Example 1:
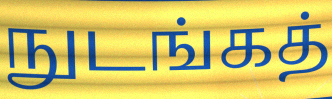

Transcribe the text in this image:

நுடங்கத்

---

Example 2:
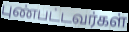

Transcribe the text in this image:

புண்பட்டவர்கள்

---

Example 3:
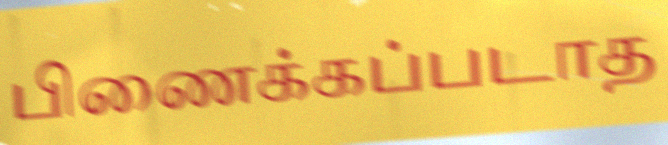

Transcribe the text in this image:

பிணைக்கப்படாத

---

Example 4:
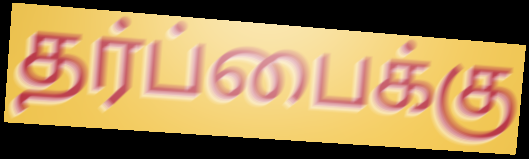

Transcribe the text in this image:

தர்ப்பைக்கு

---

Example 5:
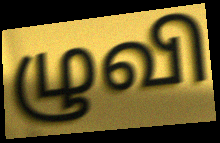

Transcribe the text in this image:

ழுவி